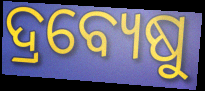
ଦ୍ରବ୍ୟେଷୁ